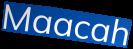
Maacah